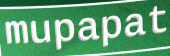
mupapat